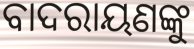
ବାଦରାୟଣଙ୍କୁ